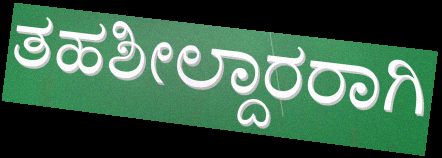
ತಹಶೀಲ್ದಾರರಾಗಿ